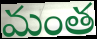
మంత